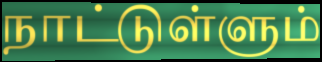
நாட்டுள்ளும்